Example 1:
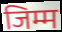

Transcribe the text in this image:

जिम्म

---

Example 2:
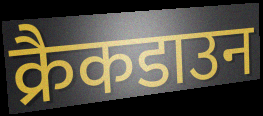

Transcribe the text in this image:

क्रैकडाउन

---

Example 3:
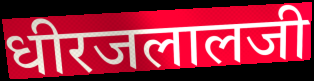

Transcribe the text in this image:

धीरजलालजी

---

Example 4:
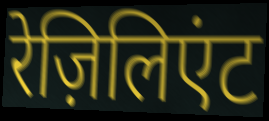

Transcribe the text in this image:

रेज़िलिएंट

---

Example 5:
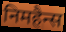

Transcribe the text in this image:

निमहैन्स